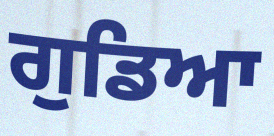
ਗੁਡਿਆ